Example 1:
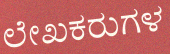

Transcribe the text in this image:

ಲೇಖಕರುಗಳ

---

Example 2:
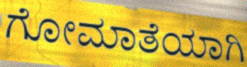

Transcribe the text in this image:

ಗೋಮಾತೆಯಾಗಿ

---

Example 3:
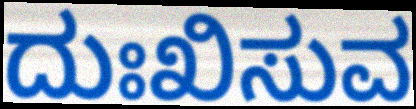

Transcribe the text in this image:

ದುಃಖಿಸುವ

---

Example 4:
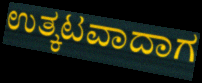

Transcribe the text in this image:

ಉತ್ಕಟವಾದಾಗ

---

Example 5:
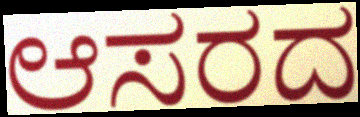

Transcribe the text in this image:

ಆಸರದ